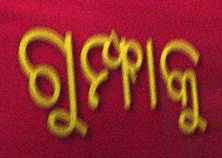
ଗୁମ୍ଫାକୁ